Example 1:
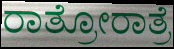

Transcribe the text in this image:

ರಾತ್ರೋರಾತ್ರೆ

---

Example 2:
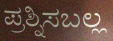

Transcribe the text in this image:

ಪ್ರಶ್ನಿಸಬಲ್ಲ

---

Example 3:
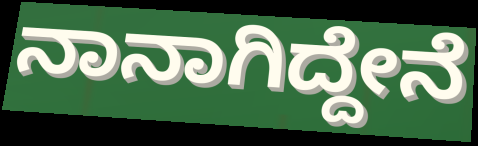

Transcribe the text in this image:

ನಾನಾಗಿದ್ದೇನೆ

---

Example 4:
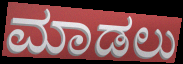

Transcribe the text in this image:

ಮಾಡಲು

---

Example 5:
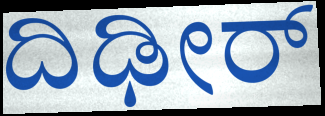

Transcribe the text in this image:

ದಿಢೀರ್